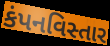
કંપનવિસ્તાર